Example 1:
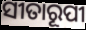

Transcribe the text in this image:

ସୀତାରୂପୀ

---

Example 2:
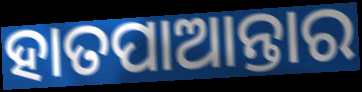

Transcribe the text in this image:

ହାତପାଆନ୍ତାର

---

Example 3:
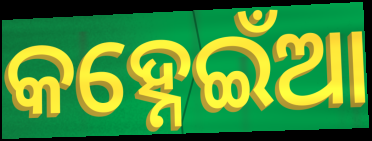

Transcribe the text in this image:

କହ୍ନେଇଁଆ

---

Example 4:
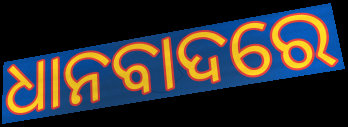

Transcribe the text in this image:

ଧାନବାଦରେ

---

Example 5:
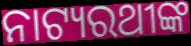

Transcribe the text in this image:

ନାଟ୍ୟରଥୀଙ୍କ